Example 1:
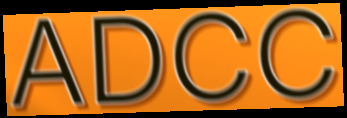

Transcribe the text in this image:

ADCC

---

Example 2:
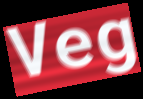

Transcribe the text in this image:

Veg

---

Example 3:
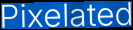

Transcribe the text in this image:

Pixelated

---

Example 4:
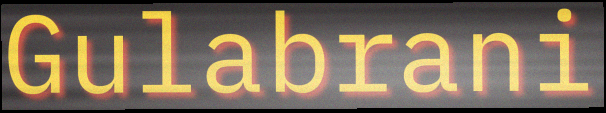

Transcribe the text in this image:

Gulabrani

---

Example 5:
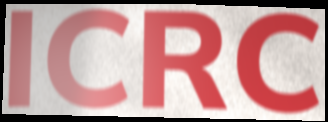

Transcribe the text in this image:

ICRC